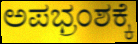
ಅಪಭ್ರಂಶಕ್ಕೆ